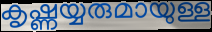
കൃഷ്ണയ്യരുമായുള്ള